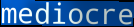
mediocre